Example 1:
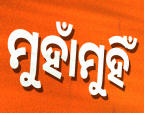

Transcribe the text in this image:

ମୁହାଁମୁହିଁ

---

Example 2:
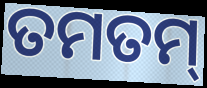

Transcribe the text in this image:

ତମତମ୍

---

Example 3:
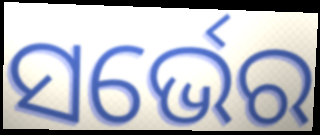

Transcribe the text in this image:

ସର୍ଭେର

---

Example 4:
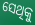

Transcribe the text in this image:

ସେଥିକୁ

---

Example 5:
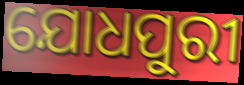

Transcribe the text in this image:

ଯୋଧପୁରୀ